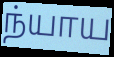
ந்யாய